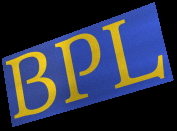
BPL